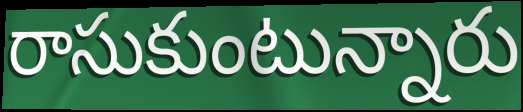
రాసుకుంటున్నారు